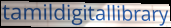
tamildigitallibrary